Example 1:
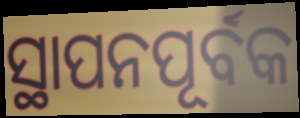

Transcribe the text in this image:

ସ୍ଥାପନପୂର୍ବକ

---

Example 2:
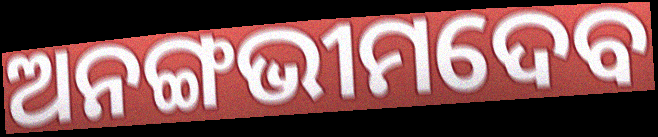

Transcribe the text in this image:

ଅନଙ୍ଗଭୀମଦେବ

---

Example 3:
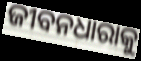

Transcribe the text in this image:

ଜୀବନଧାରାକୁ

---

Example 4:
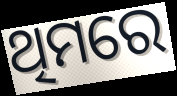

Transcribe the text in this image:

ଥିମରେ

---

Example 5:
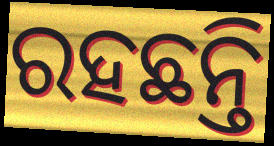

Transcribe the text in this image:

ରହଛନ୍ତି